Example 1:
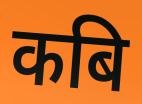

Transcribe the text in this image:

कबि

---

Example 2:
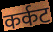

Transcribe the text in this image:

कर्कट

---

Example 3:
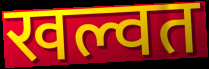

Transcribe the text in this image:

खल्वत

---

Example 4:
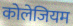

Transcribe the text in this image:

कोलेजियम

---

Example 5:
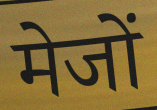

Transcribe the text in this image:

मेजों